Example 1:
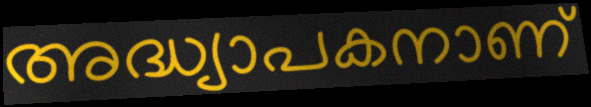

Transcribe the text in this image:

അദ്ധ്യാപകനാണ്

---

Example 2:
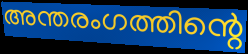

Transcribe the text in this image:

അന്തരംഗത്തിന്റെ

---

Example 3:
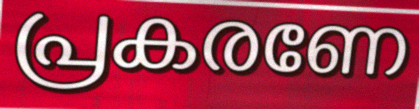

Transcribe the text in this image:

പ്രകരണേ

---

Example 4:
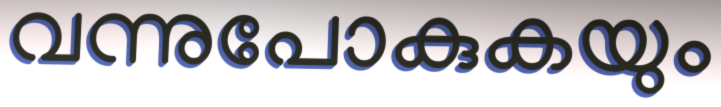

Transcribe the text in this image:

വന്നുപോകുകയും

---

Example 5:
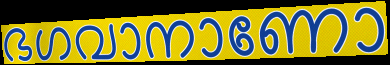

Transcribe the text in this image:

ഭഗവാനാണോ